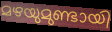
മഴയുമുണ്ടായി